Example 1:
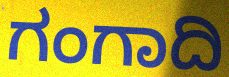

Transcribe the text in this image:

ಗಂಗಾದಿ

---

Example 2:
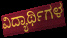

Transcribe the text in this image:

ವಿದ್ಯಾರ್ಥಿಗಳ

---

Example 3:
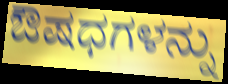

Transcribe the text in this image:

ಔಷಧಗಳನ್ನು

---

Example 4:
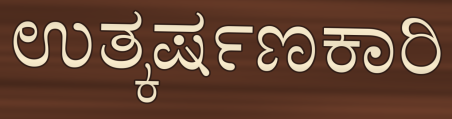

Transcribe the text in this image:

ಉತ್ಕರ್ಷಣಕಾರಿ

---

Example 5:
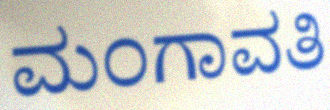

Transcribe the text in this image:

ಮಂಗಾವತಿ